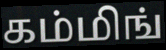
கம்மிங்